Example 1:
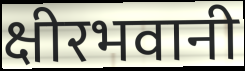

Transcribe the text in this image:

क्षीरभवानी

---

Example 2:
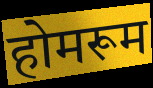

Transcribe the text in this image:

होमरूम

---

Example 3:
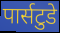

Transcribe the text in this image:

पार्सटुडे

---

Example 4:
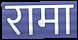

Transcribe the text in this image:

रामा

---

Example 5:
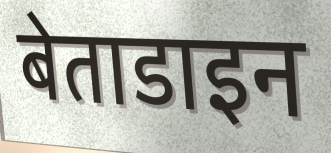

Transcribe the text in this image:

बेताडाइन